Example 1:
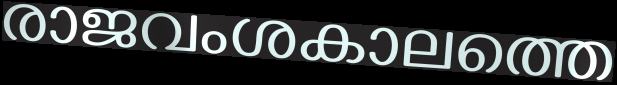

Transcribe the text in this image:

രാജവംശകാലത്തെ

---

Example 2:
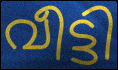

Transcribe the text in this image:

വീട്ടി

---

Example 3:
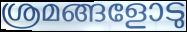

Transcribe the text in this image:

ശ്രമങ്ങളോടു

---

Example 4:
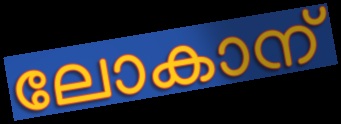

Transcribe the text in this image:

ലോകാന്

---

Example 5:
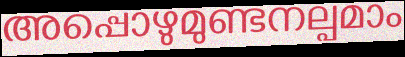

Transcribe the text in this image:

അപ്പൊഴുമുണ്ടനല്പമാം